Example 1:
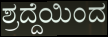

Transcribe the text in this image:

ಶ್ರದ್ದೆಯಿಂದ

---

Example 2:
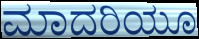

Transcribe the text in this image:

ಮಾದರಿಯೂ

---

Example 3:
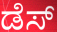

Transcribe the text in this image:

ಡೆಸ್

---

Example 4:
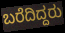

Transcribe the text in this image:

ಬರೆದಿದ್ದರು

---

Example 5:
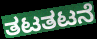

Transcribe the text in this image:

ತಟತಟನೆ